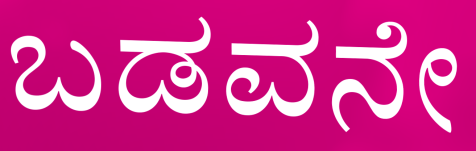
ಬಡವನೇ